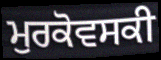
ਮੁਰਕੋਵਸਕੀ